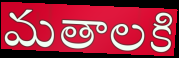
మతాలకి